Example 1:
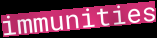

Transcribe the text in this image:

immunities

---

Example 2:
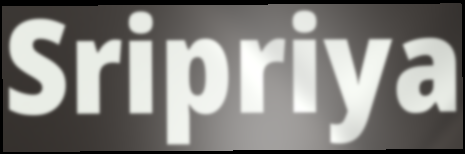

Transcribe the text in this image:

Sripriya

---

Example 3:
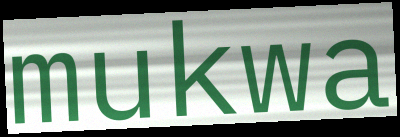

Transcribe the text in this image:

mukwa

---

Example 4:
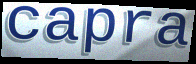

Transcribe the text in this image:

capra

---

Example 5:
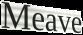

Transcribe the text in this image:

Meave